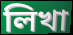
লিখা